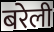
बरेली